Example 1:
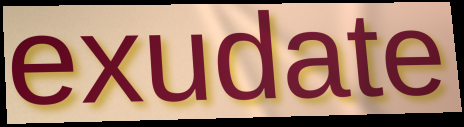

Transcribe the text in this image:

exudate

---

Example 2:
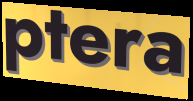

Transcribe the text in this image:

ptera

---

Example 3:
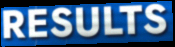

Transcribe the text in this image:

RESULTS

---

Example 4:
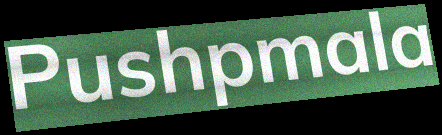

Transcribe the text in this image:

Pushpmala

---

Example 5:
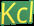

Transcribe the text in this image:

Kcl